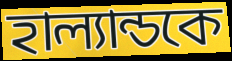
হাল্যান্ডকে